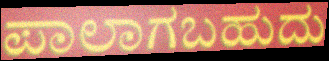
ಪಾಲಾಗಬಹುದು